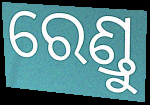
ରେଣ୍ଡୁ